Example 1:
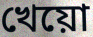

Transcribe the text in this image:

খেয়ো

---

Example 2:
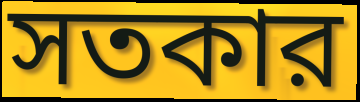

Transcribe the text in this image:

সতকার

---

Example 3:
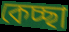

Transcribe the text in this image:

কেচ্ছা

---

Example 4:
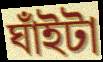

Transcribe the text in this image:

ঘাঁইটা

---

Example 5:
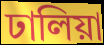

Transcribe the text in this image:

ঢালিয়া